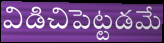
విడిచిపెట్టడమే